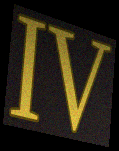
IV